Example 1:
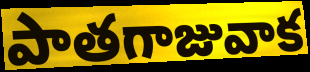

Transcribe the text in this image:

పాతగాజువాక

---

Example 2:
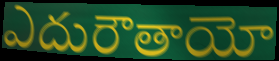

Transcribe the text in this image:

ఎదురౌతాయో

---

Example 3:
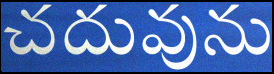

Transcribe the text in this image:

చదువును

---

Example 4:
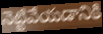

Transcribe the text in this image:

నెట్టివేయడానికి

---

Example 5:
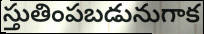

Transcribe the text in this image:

స్తుతింపబడునుగాక